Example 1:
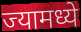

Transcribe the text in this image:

ज्यामध्ये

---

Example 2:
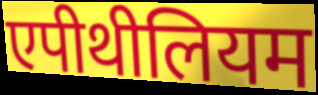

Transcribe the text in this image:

एपीथीलियम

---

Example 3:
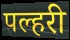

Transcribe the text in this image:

पल्हरी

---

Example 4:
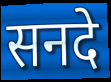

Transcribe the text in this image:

सनदे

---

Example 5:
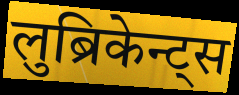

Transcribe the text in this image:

लुब्रिकेन्ट्स